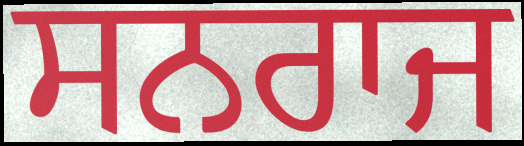
ਸਨਰਾਜ